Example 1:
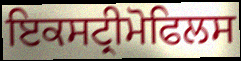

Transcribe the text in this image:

ਇਕਸਟ੍ਰੀਮੋਫਿਲਸ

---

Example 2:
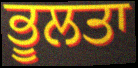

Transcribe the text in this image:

ਭੂਲਤਾ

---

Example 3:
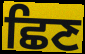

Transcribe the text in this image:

ਛਿਣ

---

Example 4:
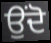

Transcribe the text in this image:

ਉਂਦੋ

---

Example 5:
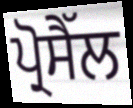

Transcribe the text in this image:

ਪ੍ਰੋਸੈੱਲ